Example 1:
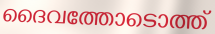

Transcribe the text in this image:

ദൈവത്തോടൊത്ത്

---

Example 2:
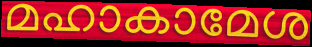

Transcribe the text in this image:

മഹാകാമേശ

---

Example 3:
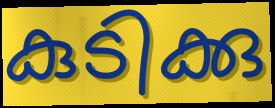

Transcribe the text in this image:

കുടിക്കു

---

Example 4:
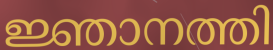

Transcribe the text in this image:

ജ്ഞാനത്തി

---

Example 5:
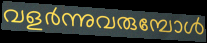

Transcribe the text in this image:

വളർന്നുവരുമ്പോൾ